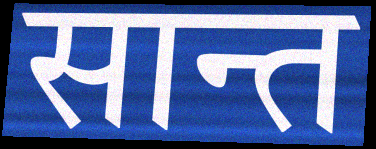
सान्त